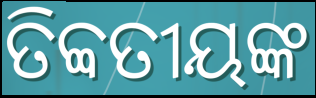
ତିବ୍ବତୀୟଙ୍କ